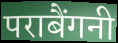
पराबैंगनी